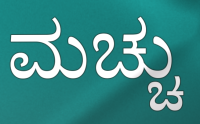
ಮಚ್ಚು